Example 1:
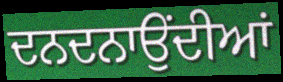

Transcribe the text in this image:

ਦਨਦਨਾਉਂਦੀਆਂ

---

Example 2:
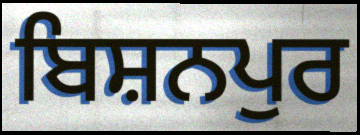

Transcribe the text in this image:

ਬਿਸ਼ਨਪੁਰ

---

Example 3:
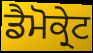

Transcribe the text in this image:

ਡੈਮੋਕ੍ਰੇਟ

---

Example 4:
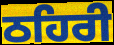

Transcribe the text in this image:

ਠਹਿਰੀ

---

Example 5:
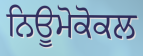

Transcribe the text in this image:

ਨਿਊਮੋਕੋਕਲ